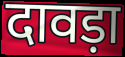
दावड़ा